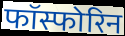
फॉस्फोरिन